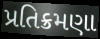
પ્રતિક્રમણા